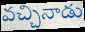
వచ్చినాడు